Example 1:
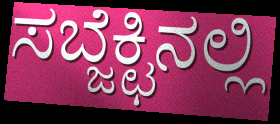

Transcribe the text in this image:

ಸಬ್ಜೆಕ್ಟಿನಲ್ಲಿ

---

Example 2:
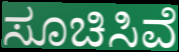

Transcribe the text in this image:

ಸೂಚಿಸಿವೆ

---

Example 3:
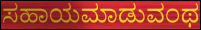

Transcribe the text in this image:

ಸಹಾಯಮಾಡುವಂಥ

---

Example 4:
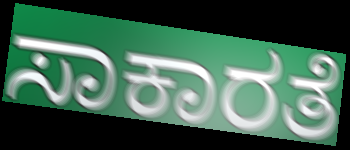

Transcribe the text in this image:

ಸಾಕಾರತೆ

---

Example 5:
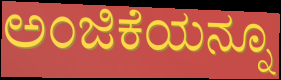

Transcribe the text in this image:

ಅಂಜಿಕೆಯನ್ನೂ